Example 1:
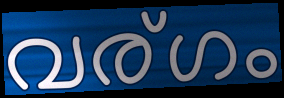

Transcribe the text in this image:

വര്ഗം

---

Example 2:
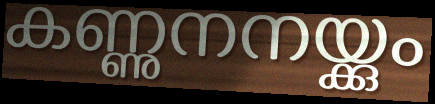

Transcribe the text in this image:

കണ്ണുനനയ്ക്കും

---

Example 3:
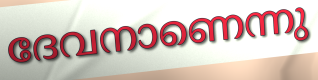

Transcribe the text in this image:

ദേവനാണെന്നു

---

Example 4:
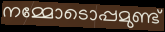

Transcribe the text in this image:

നമ്മോടൊപ്പമുണ്ട്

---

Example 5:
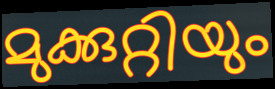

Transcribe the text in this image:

മുക്കുറ്റിയും